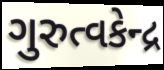
ગુરુત્વકેન્દ્ર